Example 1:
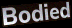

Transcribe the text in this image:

Bodied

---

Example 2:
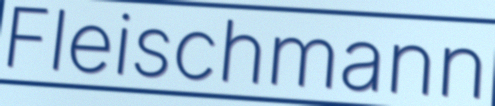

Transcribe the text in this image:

Fleischmann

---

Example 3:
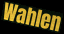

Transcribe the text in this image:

Wahlen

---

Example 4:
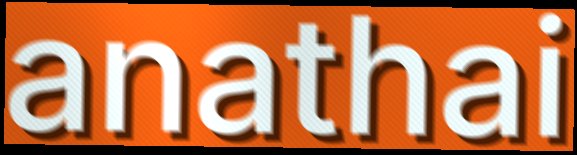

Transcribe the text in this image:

anathai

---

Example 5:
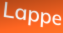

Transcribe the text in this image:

Lappe